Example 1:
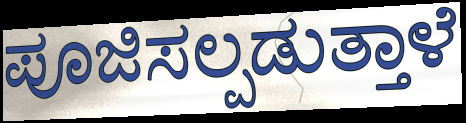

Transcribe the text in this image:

ಪೂಜಿಸಲ್ಪಡುತ್ತಾಳೆ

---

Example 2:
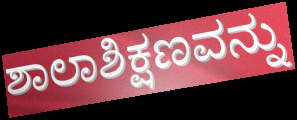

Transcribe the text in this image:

ಶಾಲಾಶಿಕ್ಷಣವನ್ನು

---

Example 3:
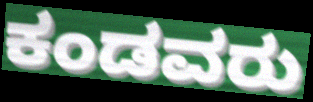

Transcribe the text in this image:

ಕಂಡವರು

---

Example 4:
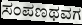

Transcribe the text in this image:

ಸಂಪಣಥವಗ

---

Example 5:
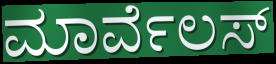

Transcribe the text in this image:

ಮಾರ್ವೆಲಸ್